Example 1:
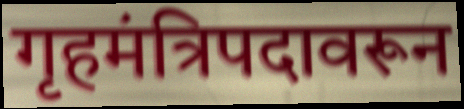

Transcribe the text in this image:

गृहमंत्रिपदावरून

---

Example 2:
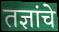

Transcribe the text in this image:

तज्ञांचे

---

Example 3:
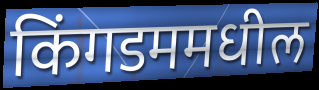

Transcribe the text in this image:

किंगडममधील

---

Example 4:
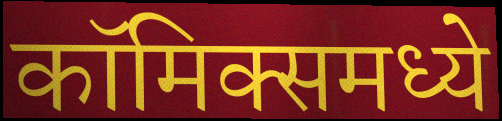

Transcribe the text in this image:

कॉमिक्समध्ये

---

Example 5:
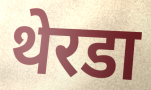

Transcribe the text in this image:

थेरडा